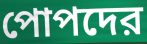
পোপদের